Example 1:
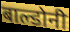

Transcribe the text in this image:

बाल्डोनी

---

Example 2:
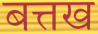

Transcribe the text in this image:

बत्तख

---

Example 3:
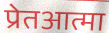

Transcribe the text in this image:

प्रेतआत्मा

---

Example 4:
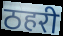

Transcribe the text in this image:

ठहरी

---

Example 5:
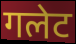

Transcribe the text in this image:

गलेट